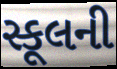
સ્કૂલની